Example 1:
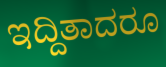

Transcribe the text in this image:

ಇದ್ದಿತಾದರೂ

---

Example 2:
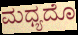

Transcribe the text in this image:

ಮಧ್ಯದೊ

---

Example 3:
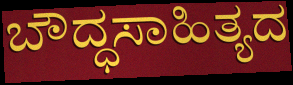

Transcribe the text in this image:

ಬೌದ್ಧಸಾಹಿತ್ಯದ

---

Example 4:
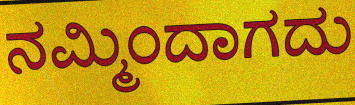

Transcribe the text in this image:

ನಮ್ಮಿಂದಾಗದು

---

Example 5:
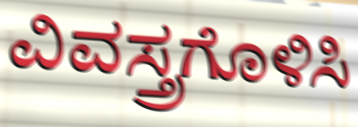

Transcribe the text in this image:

ವಿವಸ್ತ್ರಗೊಳಿಸಿ